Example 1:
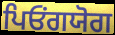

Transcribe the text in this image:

ਪਿਓਂਗਯੋਗ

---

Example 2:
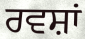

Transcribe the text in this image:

ਰਵਸ਼ਾਂ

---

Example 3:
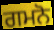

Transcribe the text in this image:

ਗਮਨੋ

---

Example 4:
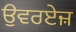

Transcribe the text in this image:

ਉਵਰਏਜ਼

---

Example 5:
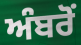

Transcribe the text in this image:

ਅੰਬਰੋਂ